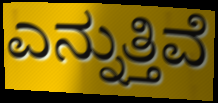
ಎನ್ನುತ್ತಿವೆ